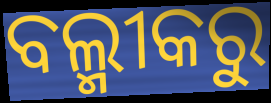
ବଲ୍ମୀକରୁ